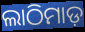
ଲାଠିମାଡ଼